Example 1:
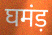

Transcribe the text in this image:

घमंड़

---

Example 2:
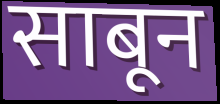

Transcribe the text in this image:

साबून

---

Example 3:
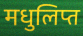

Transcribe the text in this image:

मधुलिप्त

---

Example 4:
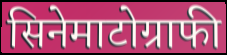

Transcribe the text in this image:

सिनेमाटोग्राफी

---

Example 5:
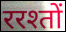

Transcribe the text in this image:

ररश्तों